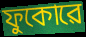
ফুকোৱে